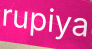
rupiya